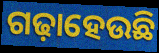
ଗଢ଼ାହେଉଛି